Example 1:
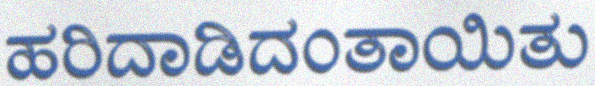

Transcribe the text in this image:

ಹರಿದಾಡಿದಂತಾಯಿತು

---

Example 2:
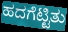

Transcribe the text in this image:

ಹದಗೆಟ್ಟಿತು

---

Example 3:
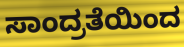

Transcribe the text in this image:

ಸಾಂದ್ರತೆಯಿಂದ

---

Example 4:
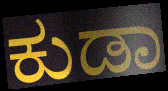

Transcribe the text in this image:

ಕುಡಾ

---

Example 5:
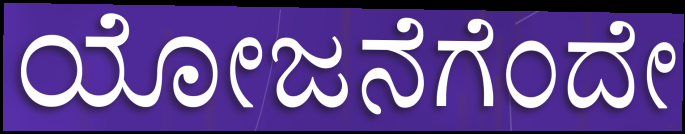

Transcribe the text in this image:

ಯೋಜನೆಗೆಂದೇ